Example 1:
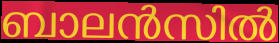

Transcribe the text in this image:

ബാലൻസിൽ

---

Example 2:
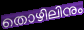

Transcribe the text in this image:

തൊഴിലിനും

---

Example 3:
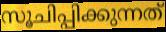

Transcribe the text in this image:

സൂചിപ്പിക്കുന്നത്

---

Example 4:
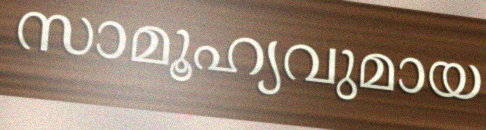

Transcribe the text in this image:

സാമൂഹ്യവുമായ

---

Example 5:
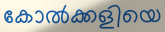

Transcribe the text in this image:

കോൽക്കളിയെ